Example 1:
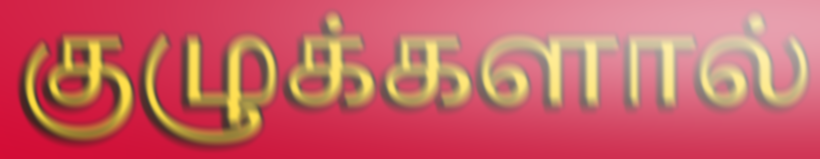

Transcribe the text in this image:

குழுக்களால்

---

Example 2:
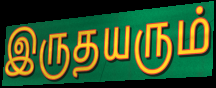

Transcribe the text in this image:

இருதயரும்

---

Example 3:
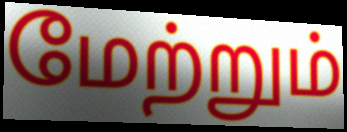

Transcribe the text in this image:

மேற்றும்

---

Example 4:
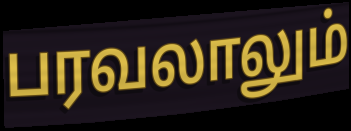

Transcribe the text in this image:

பரவலாலும்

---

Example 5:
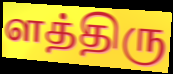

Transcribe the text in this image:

ளத்திரு